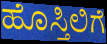
ಹೊಸ್ತಿಲಿಗೆ